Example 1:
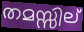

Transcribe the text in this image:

തമസ്സില്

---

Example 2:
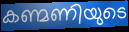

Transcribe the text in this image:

കണ്മണിയുടെ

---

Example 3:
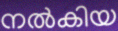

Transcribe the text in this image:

നൽകിയ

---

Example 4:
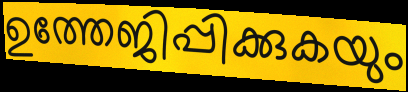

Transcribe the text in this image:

ഉത്തേജിപ്പിക്കുകയും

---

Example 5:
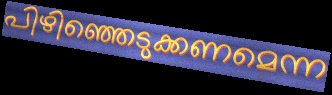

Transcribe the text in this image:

പിഴിഞ്ഞെടുക്കണമെന്ന